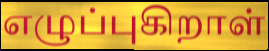
எழுப்புகிறாள்